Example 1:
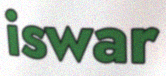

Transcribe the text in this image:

iswar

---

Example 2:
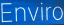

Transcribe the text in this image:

Enviro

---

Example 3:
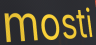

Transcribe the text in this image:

mosti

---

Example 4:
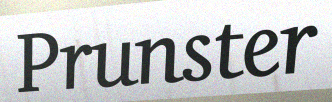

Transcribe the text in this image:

Prunster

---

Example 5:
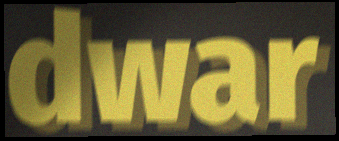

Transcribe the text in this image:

dwar